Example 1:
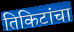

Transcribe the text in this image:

तिकिटांचा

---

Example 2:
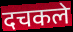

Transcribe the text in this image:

दचकले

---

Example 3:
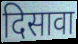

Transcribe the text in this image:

दिसावा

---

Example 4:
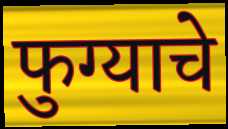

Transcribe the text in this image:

फुग्याचे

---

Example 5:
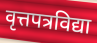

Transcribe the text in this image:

वृत्तपत्रविद्या